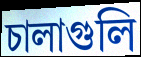
চালাগুলি